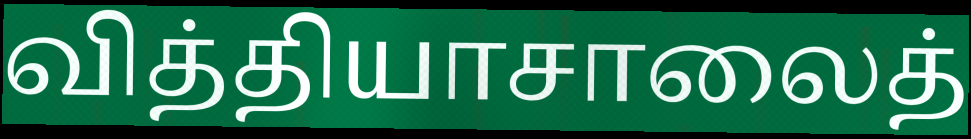
வித்தியாசாலைத்